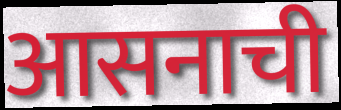
आसनाची